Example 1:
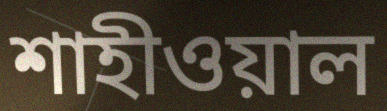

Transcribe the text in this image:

শাহীওয়াল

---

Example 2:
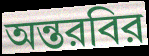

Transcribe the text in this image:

অন্তরবির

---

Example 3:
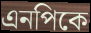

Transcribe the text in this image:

এনপিকে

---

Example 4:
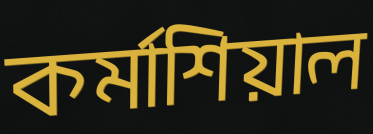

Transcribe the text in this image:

কর্মাশিয়াল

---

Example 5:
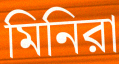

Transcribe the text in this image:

মিনিরা